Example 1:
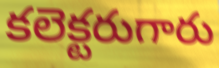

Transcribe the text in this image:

కలెక్టరుగారు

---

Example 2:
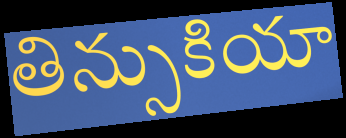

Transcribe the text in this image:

తిన్సుకియా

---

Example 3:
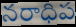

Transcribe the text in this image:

నరాధిప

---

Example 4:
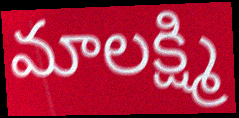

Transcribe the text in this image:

మాలక్ష్మి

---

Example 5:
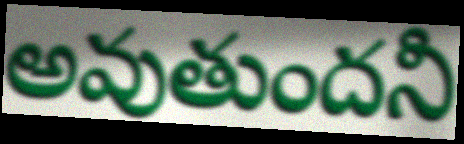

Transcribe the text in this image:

అవుతుందనీ